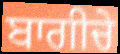
ਬਾਗੀਚੇ